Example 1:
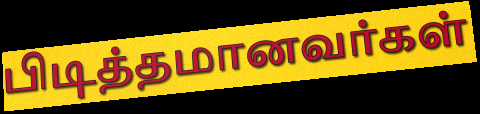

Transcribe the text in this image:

பிடித்தமானவர்கள்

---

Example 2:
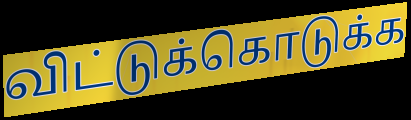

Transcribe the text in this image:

விட்டுக்கொடுக்க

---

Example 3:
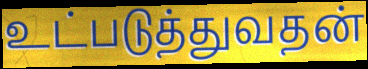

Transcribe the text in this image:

உட்படுத்துவதன்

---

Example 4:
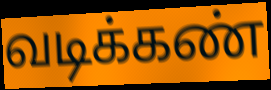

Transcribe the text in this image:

வடிக்கண்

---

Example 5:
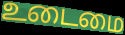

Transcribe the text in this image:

உடைமை